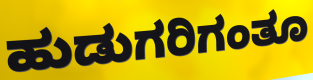
ಹುಡುಗರಿಗಂತೂ